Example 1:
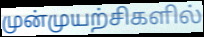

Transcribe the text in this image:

முன்முயற்சிகளில்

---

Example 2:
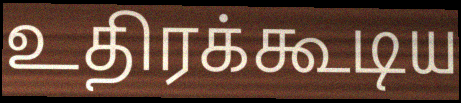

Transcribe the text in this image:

உதிரக்கூடிய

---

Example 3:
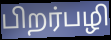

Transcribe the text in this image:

பிறர்பழி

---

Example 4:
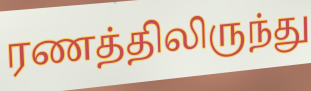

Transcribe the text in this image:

ரணத்திலிருந்து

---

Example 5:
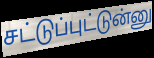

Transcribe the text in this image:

சட்டுப்புட்டுன்னு